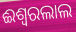
ଈଶ୍ଵରଲାଲ